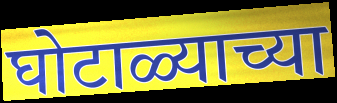
घोटाळ्याच्या